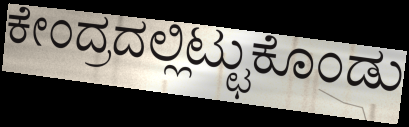
ಕೇಂದ್ರದಲ್ಲಿಟ್ಟುಕೊಂಡು